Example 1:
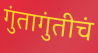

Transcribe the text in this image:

गुंतागुंतीचं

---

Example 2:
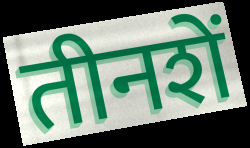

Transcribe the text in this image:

तीनशें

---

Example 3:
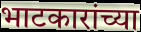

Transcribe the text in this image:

भाटकारांच्या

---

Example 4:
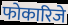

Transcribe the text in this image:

फोकारिजे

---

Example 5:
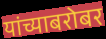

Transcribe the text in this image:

यांच्याबरोबर